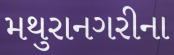
મથુરાનગરીના